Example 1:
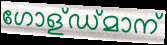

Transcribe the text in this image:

ഗോള്ഡ്മാന്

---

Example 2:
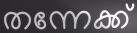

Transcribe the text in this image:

തന്നേക്ക്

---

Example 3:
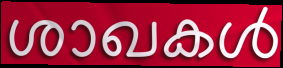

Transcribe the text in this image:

ശാഖകൾ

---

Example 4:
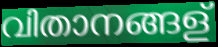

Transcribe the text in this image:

വിതാനങ്ങള്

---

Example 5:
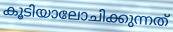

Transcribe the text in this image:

കൂടിയാലോചിക്കുന്നത്